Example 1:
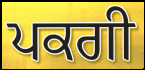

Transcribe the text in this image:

ਪਕਗੀ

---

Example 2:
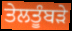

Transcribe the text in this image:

ਤੇਲਤੂੰਬੜੇ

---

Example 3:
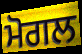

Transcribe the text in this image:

ਮੋਗਲ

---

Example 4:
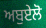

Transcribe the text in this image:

ਅਬੁਏਲੋ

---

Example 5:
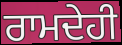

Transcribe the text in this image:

ਰਾਮਦੇਹੀ